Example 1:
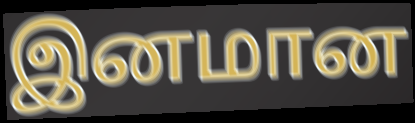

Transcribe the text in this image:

இனமான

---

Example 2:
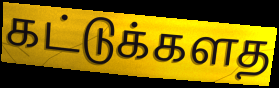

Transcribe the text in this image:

கட்டுக்களத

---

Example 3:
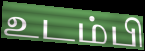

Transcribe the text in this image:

உடம்பி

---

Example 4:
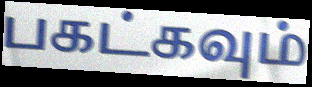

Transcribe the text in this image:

பகட்கவும்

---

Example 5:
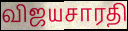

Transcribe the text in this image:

விஜயசாரதி